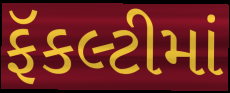
ફૅકલ્ટીમાં